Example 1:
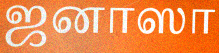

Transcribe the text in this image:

ஜனாஸா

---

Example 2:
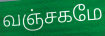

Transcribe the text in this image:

வஞ்சகமே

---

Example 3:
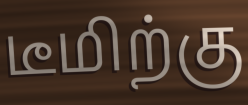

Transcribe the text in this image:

டீமிற்கு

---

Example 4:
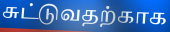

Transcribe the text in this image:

சுட்டுவதற்காக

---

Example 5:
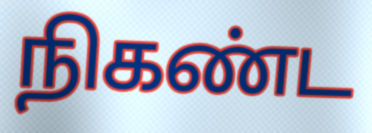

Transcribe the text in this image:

நிகண்ட